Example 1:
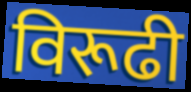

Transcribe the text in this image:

विरूढी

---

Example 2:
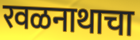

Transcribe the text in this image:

रवळनाथाचा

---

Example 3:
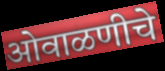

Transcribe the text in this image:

ओवाळणीचे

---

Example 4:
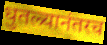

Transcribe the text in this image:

धुतल्यानंतरच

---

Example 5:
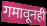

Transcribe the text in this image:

गमावूनही